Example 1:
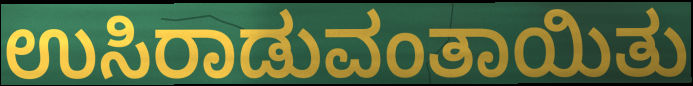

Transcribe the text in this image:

ಉಸಿರಾಡುವಂತಾಯಿತು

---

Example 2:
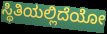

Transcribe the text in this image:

ಸ್ಥಿತಿಯಲ್ಲಿದೆಯೋ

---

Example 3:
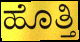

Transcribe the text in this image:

ಹೊತ್ತಿ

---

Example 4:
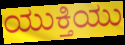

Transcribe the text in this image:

ಯುಕ್ತಿಯು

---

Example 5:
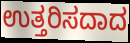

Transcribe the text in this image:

ಉತ್ತರಿಸದಾದ